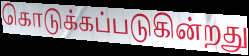
கொடுக்கப்படுகின்றது